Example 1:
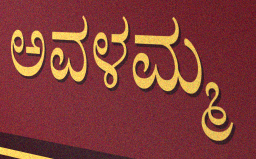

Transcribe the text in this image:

ಅವಳಮ್ಮ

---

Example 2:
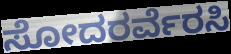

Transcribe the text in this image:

ಸೋದರರ್ವೆರಸಿ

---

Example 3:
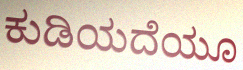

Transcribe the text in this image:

ಕುಡಿಯದೆಯೂ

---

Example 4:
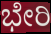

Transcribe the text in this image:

ಭೇರಿ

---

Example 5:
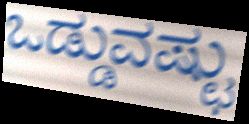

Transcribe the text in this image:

ಒಡ್ಡುವಷ್ಟು